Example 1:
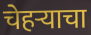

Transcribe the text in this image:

चेहर्‍याचा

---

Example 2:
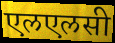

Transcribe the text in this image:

एलएलसी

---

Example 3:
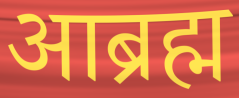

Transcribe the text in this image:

आब्रह्म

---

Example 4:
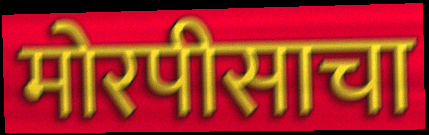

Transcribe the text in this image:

मोरपीसाचा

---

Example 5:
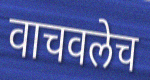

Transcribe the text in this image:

वाचवलेच